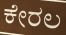
ಕೇರಲ